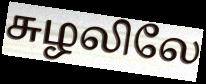
சுழலிலே